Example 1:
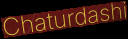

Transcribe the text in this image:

Chaturdashi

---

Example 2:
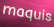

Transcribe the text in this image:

maquis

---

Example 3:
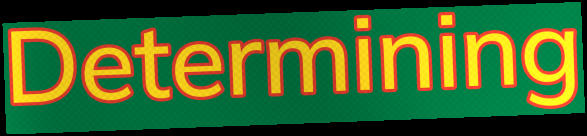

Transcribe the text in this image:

Determining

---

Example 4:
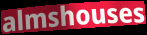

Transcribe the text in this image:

almshouses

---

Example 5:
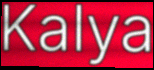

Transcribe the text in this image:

Kalya